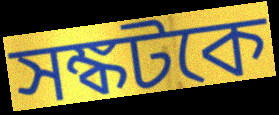
সঙ্কটকে